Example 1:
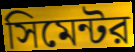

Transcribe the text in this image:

সিমেন্টর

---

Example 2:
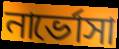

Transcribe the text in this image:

নার্ভোসা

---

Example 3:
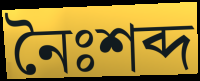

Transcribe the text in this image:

নৈঃশব্দ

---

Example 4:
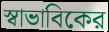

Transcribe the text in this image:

স্বাভাবিকের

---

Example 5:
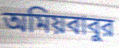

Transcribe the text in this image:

অমিয়বাবুর